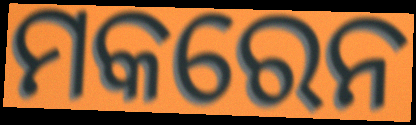
ମକରେନ